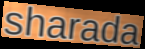
sharada